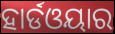
ହାର୍ଡଓୟାର